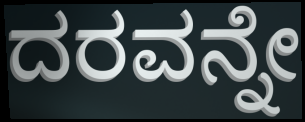
ದರವನ್ನೇ